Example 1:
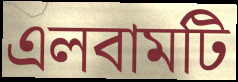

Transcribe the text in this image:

এলবামটি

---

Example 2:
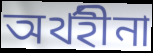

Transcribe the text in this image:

অর্থহীনা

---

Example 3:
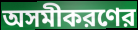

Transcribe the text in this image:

অসমীকরণের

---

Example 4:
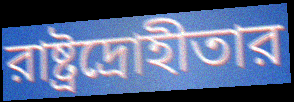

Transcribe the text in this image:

রাষ্ট্রদ্রোহীতার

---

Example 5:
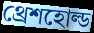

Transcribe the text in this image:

থ্রেশহোল্ড